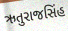
ઋતુરાજસિંહ